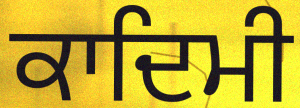
ਕਾਦਿਮੀ